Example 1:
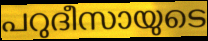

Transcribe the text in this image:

പറുദീസായുടെ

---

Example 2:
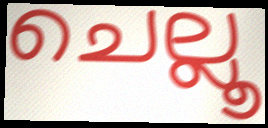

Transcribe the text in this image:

ചെല്ലൂ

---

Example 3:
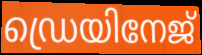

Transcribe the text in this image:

ഡ്രെയിനേജ്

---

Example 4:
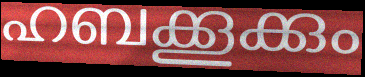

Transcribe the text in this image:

ഹബക്കൂക്കും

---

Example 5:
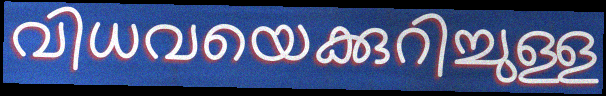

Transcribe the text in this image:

വിധവയെക്കുറിച്ചുള്ള